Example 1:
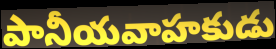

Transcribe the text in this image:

పానీయవాహకుడు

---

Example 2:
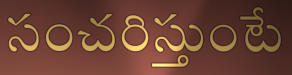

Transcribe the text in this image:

సంచరిస్తుంటే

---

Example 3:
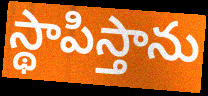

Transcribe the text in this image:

స్థాపిస్తాను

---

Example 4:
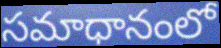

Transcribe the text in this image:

సమాధానంలో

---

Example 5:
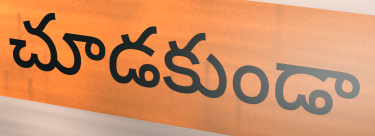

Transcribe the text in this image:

చూడకుండా